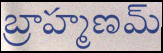
బ్రాహ్మణమ్